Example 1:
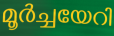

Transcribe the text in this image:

മൂർച്ചയേറി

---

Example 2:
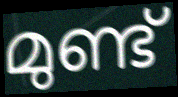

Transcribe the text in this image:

മുണ്ട്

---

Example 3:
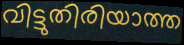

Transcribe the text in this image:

വിട്ടുതിരിയാത്ത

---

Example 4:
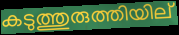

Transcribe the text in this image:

കടുത്തുരുത്തിയില്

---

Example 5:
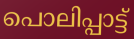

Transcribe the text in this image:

പൊലിപ്പാട്ട്